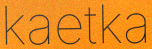
kaetka